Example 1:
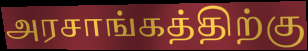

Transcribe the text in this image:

அரசாங்கத்திற்கு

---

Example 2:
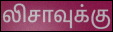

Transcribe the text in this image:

லிசாவுக்கு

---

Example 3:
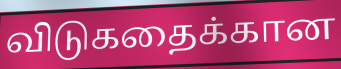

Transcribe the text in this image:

விடுகதைக்கான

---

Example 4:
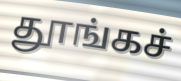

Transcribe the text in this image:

தூங்கச்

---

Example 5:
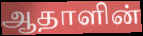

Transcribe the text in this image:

ஆதாளின்